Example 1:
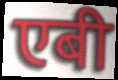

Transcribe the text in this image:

एबी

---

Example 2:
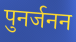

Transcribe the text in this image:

पुनर्जनन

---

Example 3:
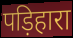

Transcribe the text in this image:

पड़िहारा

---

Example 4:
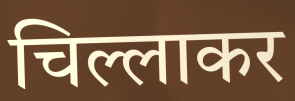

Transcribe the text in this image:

चिल्लाकर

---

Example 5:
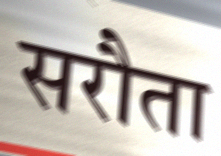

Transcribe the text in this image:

सरौता